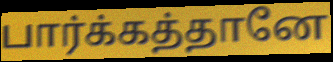
பார்க்கத்தானே